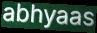
abhyaas